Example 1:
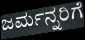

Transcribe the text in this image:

ಜರ್ಮನ್ನರಿಗೆ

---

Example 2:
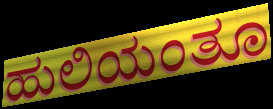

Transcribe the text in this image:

ಹುಲಿಯಂತೂ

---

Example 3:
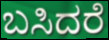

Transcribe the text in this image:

ಬಸಿದರೆ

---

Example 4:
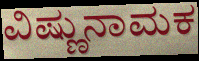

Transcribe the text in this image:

ವಿಷ್ಣುನಾಮಕ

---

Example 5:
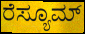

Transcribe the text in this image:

ರೆಸ್ಯೂಮ್